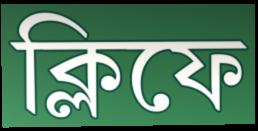
ক্লিফে